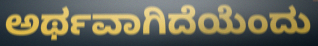
ಅರ್ಥವಾಗಿದೆಯೆಂದು